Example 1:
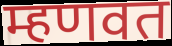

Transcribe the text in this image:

म्हणवत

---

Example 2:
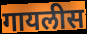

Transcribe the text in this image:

गायलीस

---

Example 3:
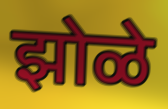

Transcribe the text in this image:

झोळे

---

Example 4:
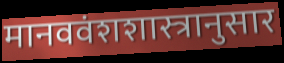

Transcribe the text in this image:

मानववंशशास्त्रानुसार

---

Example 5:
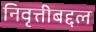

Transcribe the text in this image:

निवृत्तीबद्दल